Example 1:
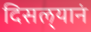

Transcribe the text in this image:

दिसल्यानं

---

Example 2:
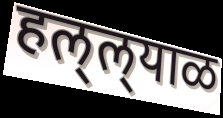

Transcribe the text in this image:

हल्ल्याळ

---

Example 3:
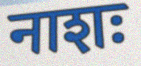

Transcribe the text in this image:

नाशः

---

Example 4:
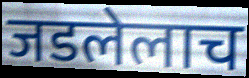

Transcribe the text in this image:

जडलेलाच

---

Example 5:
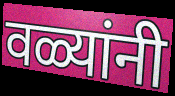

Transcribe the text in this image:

वळ्यांनी